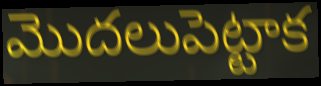
మొదలుపెట్టాక